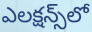
ఎలక్షన్స్‌లో